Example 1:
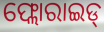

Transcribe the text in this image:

ଫ୍ଲୋରାଇଡ୍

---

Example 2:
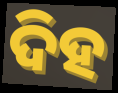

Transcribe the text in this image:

ଦିହ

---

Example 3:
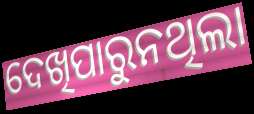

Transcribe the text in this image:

ଦେଖିପାରୁନଥିଲା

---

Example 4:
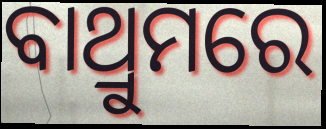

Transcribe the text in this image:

ବାଥ୍ରୁମରେ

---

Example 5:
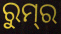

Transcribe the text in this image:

ରୁମ୍‌ର